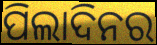
ପିଲାଦିନର